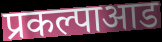
प्रकल्पाआड